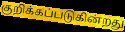
குறிக்கப்படுகின்றது